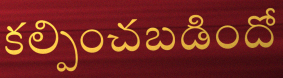
కల్పించబడిందో